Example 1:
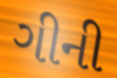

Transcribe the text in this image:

ગીની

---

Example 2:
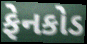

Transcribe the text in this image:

ફેનકોડ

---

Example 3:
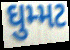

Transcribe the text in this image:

ઘુમ્મટ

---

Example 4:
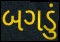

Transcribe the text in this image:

બગડું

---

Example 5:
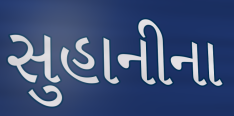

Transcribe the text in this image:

સુહાનીના